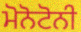
ਮੋਨੋਟੋਨੀ